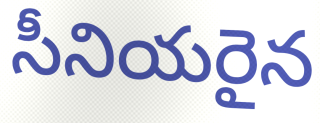
సీనియరైన